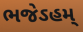
ભજેઽહમ્